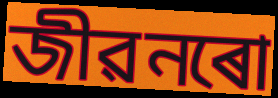
জীৱনৰো